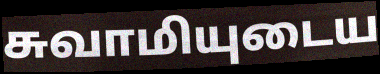
சுவாமியுடைய